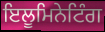
ਇਲੂਮਿਨੇਟਿੰਗ